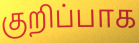
குறிப்பாக